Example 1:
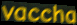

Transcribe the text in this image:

vaccha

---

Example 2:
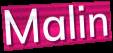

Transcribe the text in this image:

Malin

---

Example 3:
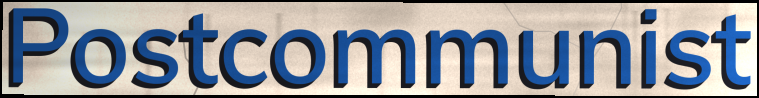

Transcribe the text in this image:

Postcommunist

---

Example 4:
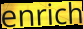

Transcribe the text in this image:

enrich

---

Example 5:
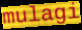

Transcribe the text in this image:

mulagi